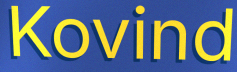
Kovind